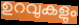
ഉറവുകളും